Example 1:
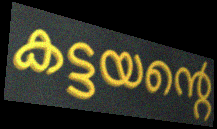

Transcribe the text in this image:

കട്ടയന്റെ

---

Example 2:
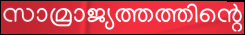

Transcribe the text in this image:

സാമ്രാജ്യത്തത്തിന്റെ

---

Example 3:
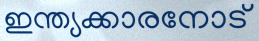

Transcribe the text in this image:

ഇന്ത്യക്കാരനോട്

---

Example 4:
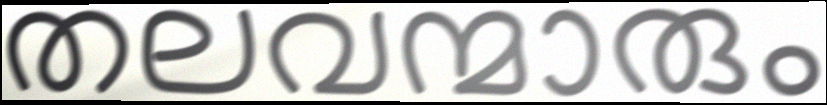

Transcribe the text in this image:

തലവന്മാരും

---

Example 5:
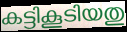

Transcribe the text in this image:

കട്ടികൂടിയതു